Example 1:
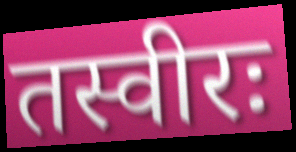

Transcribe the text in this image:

तस्वीरः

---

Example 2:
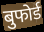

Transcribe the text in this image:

बुफोर्ड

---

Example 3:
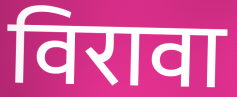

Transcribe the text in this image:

विरावा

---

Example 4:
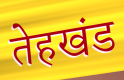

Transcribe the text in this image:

तेहखंड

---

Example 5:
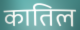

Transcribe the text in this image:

कातिल